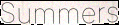
Summers